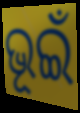
ଭୂଇଁ